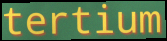
tertium